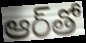
ఆర్‌తో